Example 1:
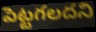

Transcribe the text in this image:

పెట్టగలదని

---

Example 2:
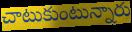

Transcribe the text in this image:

చాటుకుంటున్నారు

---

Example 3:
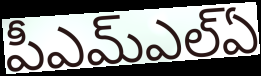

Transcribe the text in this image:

పీఎమ్ఎల్ఏ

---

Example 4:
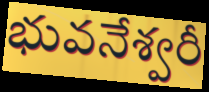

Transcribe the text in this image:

భువనేశ్వరీ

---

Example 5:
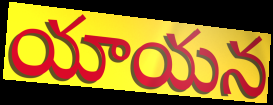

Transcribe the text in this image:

యాయన